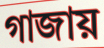
গাজায়